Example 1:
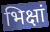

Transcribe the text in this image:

भिक्षां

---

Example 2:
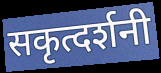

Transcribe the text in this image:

सकृत्दर्शनी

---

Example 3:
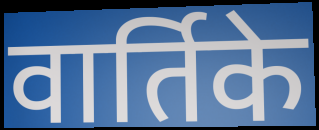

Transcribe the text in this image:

वार्तिके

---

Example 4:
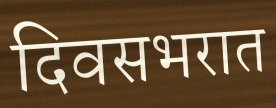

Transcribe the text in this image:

दिवसभरात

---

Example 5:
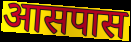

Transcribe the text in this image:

आसपास